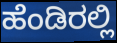
ಹೆಂಡಿರಲ್ಲಿ